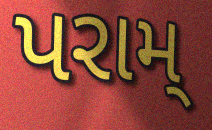
પરામ્